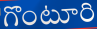
గొంటూరి